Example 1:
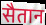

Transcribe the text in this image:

सैतान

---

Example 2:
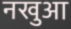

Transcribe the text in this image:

नखुआ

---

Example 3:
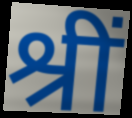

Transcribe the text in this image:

श्रीं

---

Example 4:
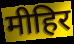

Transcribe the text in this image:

मीहिर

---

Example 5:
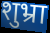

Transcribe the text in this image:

शुभ्रा